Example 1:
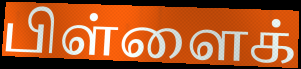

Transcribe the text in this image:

பிள்ளைக்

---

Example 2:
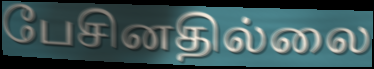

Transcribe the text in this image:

பேசினதில்லை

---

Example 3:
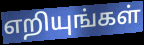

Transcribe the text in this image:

எறியுங்கள்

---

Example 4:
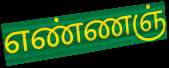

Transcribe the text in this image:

எண்ணஞ்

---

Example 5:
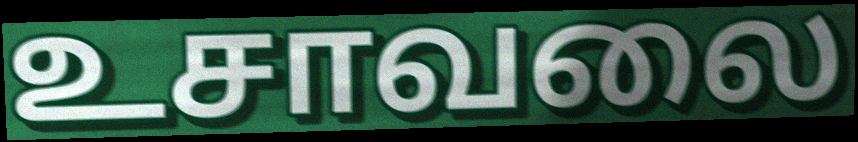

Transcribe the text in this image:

உசாவலை